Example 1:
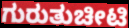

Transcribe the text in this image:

ಗುರುತುಚೀಟಿ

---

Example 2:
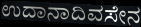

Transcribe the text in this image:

ಉದಾನಾದಿವಸೇನ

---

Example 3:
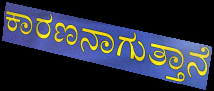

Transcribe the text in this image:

ಕಾರಣನಾಗುತ್ತಾನೆ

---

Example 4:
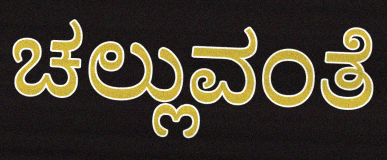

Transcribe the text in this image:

ಚಲ್ಲುವಂತೆ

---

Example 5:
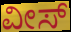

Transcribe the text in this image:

ವೀಸ್